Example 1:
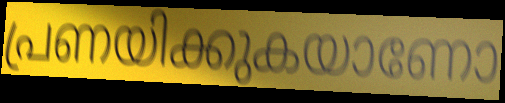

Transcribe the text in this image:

പ്രണയിക്കുകയാണോ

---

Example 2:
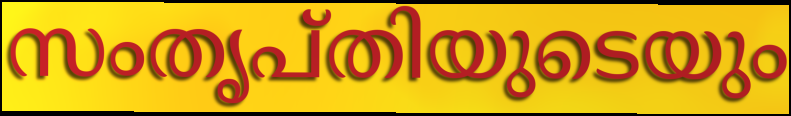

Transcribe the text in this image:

സംതൃപ്തിയുടെയും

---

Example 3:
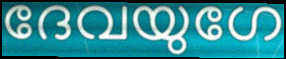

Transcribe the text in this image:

ദേവയുഗേ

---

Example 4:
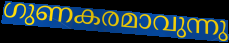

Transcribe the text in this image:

ഗുണകരമാവുന്നു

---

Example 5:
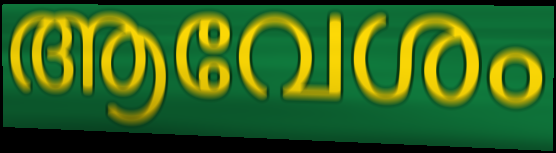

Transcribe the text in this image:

ആവേശം